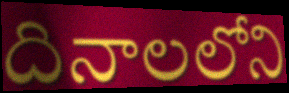
దినాలలోని